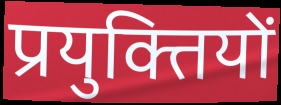
प्रयुक्तियों